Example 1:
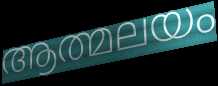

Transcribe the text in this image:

ആത്മലയം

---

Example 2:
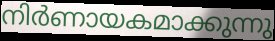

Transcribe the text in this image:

നിർണായകമാക്കുന്നു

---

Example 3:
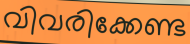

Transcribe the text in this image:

വിവരിക്കേണ്ട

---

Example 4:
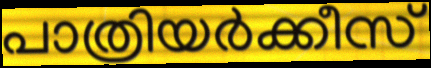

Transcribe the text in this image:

പാത്രിയർക്കീസ്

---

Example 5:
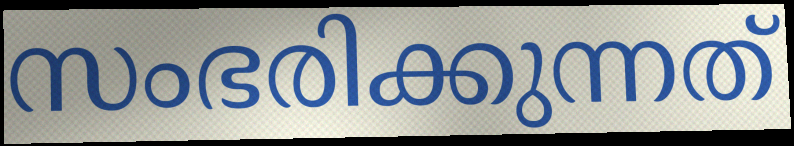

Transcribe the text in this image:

സംഭരിക്കുന്നത്